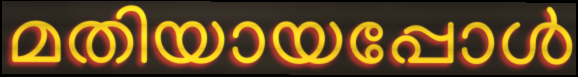
മതിയായപ്പോൾ